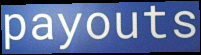
payouts